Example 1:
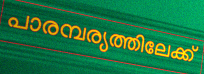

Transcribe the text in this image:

പാരമ്പര്യത്തിലേക്ക്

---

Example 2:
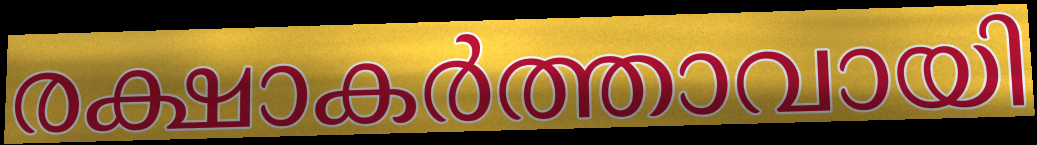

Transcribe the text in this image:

രക്ഷാകർത്താവായി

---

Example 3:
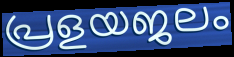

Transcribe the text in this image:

പ്രളയജലം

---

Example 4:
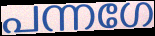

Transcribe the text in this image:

പന്നഗേ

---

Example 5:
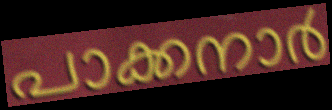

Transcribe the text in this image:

പാക്കനാർ